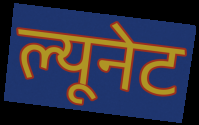
ल्यूनेट